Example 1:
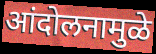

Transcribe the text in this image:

आंदोलनामुळे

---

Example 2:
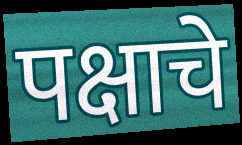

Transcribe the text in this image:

पक्षाचे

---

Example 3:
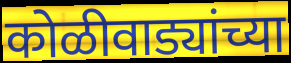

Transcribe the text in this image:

कोळीवाड्यांच्या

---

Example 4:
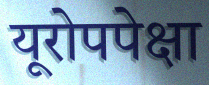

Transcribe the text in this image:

यूरोपपेक्षा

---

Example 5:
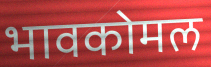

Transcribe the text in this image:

भावकोमल